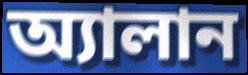
অ্যালান